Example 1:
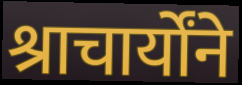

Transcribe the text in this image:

श्राचार्योंने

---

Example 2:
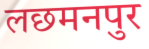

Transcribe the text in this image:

लछमनपुर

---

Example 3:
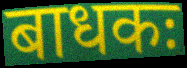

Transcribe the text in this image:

बाधकः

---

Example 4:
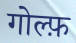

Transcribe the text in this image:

गोल्फ़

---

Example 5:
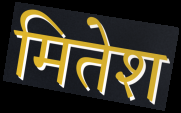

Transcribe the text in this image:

मितेश